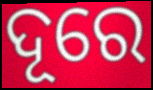
ଦୂରେ